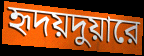
হৃদয়দুয়ারে